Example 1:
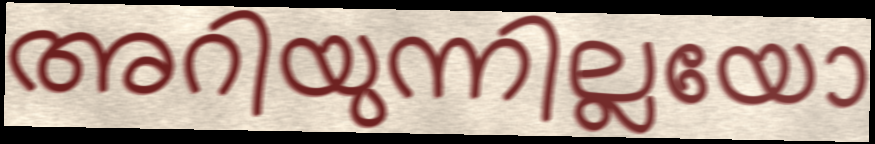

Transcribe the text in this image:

അറിയുന്നില്ലയോ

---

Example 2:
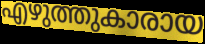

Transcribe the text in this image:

എഴുത്തുകാരായ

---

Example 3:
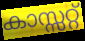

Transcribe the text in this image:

കാസ്സറ്റ്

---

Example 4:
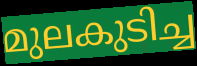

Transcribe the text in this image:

മുലകുടിച്ച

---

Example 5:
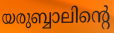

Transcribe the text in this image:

യരുബ്ബാലിന്റെ